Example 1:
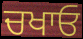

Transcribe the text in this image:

ਚਖਾਓ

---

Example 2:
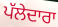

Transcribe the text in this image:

ਪੱਲੇਦਾਰਾ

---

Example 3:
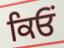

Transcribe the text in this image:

ਕਿਓਂ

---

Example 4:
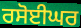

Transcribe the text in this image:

ਰਸੋਈਘਰ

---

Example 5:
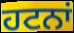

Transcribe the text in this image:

ਹਟਨਾਂ